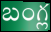
బంగ్ల